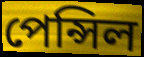
পেন্সিল